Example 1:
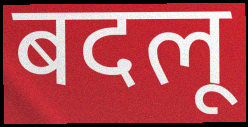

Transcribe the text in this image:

बदलू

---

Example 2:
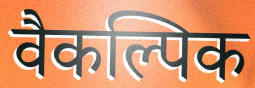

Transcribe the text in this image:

वैकल्पिक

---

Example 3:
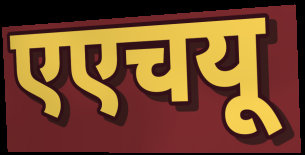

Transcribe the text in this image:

एएचयू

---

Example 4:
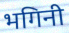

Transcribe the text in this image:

भगिनी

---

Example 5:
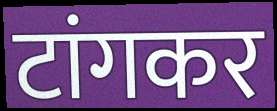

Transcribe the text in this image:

टांगकर